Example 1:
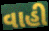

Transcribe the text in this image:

વાહી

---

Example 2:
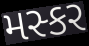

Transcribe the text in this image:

મસ્કર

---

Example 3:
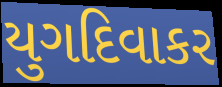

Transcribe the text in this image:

યુગદિવાકર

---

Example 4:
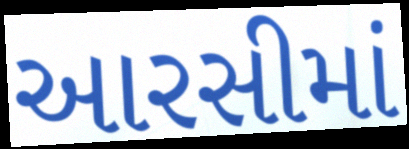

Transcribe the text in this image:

આરસીમાં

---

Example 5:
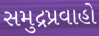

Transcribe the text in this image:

સમુદ્રપ્રવાહો